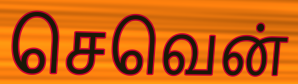
செவென்